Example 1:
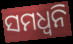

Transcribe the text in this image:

ସମଧ୍ୱନି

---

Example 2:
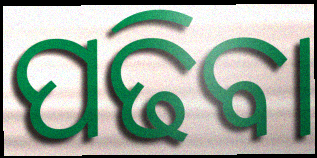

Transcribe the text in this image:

ପଢିବା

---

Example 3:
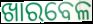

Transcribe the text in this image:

ଖାରବେଳ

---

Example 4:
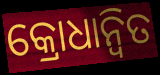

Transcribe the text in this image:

କ୍ରୋଧାନ୍ୱିତ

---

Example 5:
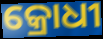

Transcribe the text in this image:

କ୍ରୋଧୀ